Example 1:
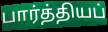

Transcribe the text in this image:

பார்த்தியப்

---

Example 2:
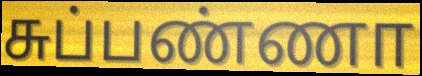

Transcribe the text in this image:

சுப்பண்ணா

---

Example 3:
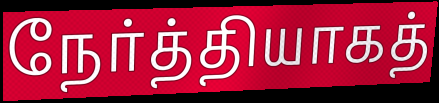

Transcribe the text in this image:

நேர்த்தியாகத்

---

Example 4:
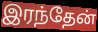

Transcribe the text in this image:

இரந்தேன்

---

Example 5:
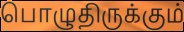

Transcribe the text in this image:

பொழுதிருக்கும்